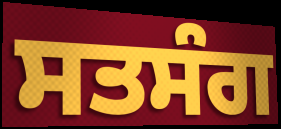
ਸਤਸੰਗ